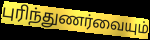
புரிந்துணர்வையும்